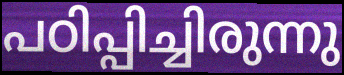
പഠിപ്പിച്ചിരുന്നു